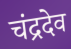
चंद्रदेव